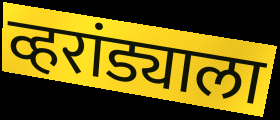
व्हरांड्याला